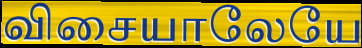
விசையாலேயே